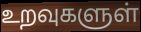
உறவுகளுள்